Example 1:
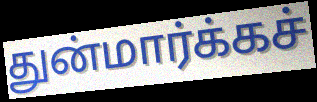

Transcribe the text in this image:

துன்மார்க்கச்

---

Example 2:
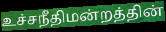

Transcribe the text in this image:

உச்சநீதிமன்றத்தின்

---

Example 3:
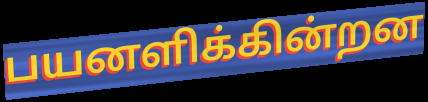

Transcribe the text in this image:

பயனளிக்கின்றன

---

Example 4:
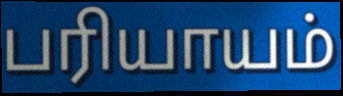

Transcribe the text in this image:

பரியாயம்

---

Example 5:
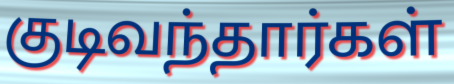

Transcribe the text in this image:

குடிவந்தார்கள்